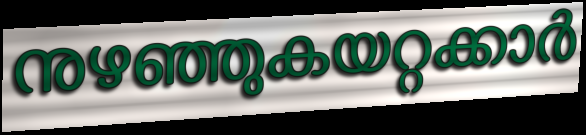
നുഴഞ്ഞുകയറ്റക്കാർ